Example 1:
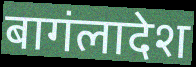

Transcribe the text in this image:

बागंलादेश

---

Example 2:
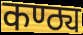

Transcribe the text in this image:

कण्ठ्य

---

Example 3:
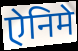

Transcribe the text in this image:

ऐनिमे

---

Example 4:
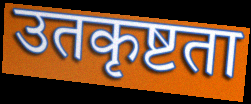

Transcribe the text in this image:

उतकृष्टता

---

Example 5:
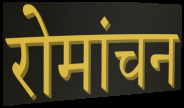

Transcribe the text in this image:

रोमांचन